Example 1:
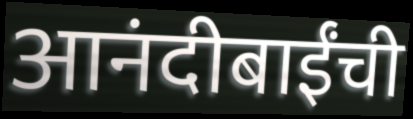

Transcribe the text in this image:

आनंदीबाईंची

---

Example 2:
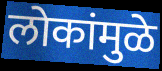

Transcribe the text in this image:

लोकांमुळे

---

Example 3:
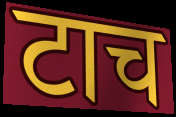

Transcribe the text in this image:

टाच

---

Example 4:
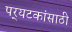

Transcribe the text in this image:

पर्यटकांसाठी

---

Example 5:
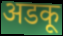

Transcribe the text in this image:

अडकू